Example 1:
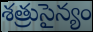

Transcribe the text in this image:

శత్రుసైన్యం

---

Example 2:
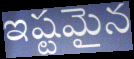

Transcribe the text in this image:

ఇష్టమైన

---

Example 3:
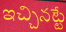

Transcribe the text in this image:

ఇచ్చినట్టే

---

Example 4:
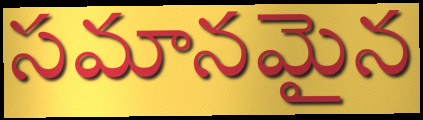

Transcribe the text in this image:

సమానమైన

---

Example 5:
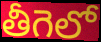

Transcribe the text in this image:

తీగెలో